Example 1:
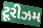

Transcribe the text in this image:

ટૂરીઝમ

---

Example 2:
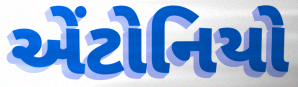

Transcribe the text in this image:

એંટોનિયો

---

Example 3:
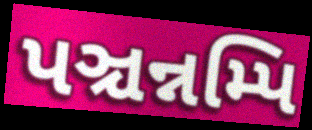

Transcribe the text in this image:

પઞ્ચન્નમ્પિ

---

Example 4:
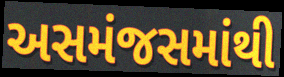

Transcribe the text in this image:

અસમંજસમાંથી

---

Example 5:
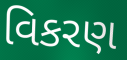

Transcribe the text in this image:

વિકરણ